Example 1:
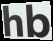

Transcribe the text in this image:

hb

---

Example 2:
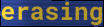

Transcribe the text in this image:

erasing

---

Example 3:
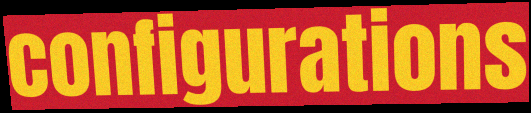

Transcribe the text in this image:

configurations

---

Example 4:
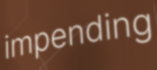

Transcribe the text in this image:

impending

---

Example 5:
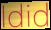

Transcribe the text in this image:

Idid